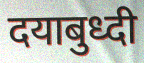
दयाबुध्दी